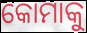
କୋମାକୁ